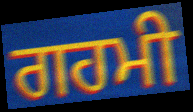
ਗਹਮੀ